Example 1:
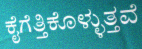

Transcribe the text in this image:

ಕೈಗೆತ್ತಿಕೊಳ್ಳುತ್ತವೆ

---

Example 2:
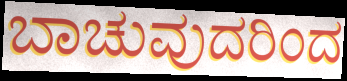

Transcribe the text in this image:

ಬಾಚುವುದರಿಂದ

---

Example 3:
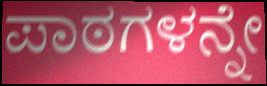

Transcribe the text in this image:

ಪಾಠಗಳನ್ನೇ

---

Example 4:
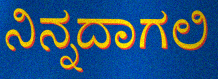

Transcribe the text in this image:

ನಿನ್ನದಾಗಲಿ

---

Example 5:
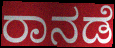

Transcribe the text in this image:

ರಾನಡೆ